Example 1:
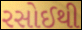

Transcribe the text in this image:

રસોઈથી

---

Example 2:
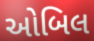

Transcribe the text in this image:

ઓબિલ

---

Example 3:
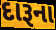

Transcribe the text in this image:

દારૂના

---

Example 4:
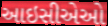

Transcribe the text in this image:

આઇસીએઓ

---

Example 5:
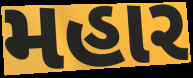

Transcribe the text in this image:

મહાર